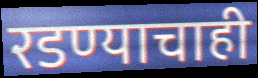
रडण्याचाही